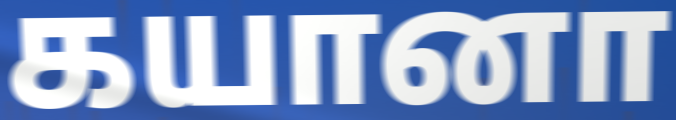
கயானா